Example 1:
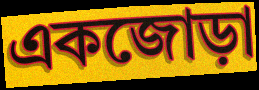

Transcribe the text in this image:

একজোড়া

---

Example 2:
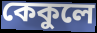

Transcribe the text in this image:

কেকুলে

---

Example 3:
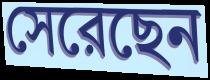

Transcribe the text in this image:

সেরেছেন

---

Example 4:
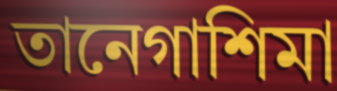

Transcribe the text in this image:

তানেগাশিমা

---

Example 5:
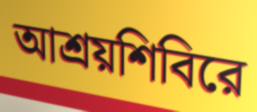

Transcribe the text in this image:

আশ্রয়শিবিরে